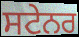
ਸਟੇਨਰ